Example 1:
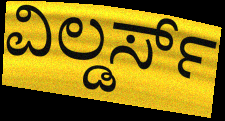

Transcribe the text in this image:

ವಿಲ್ಡರ್ಸ್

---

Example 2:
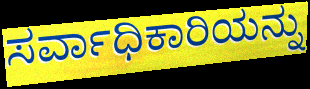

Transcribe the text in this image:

ಸರ್ವಾಧಿಕಾರಿಯನ್ನು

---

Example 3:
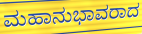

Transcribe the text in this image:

ಮಹಾನುಭಾವರಾದ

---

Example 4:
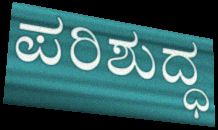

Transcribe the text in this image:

ಪರಿಶುದ್ಧ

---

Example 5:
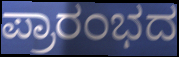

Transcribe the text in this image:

ಪ್ರಾರಂಭದ